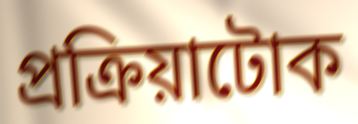
প্ৰক্ৰিয়াটোক